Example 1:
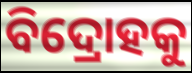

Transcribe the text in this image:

ବିଦ୍ରୋହକୁ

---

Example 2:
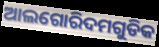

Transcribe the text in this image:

ଆଲଗୋରିଦମଗୁଡିକ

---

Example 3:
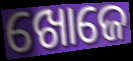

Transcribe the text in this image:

ଖୋଜେ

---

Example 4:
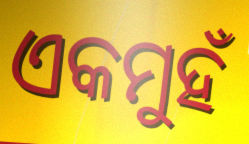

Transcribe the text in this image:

ଏକମୁହଁ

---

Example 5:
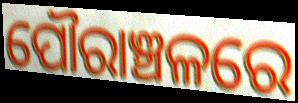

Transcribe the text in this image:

ପୌରାଞ୍ଚଳରେ